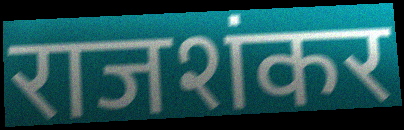
राजशंकर